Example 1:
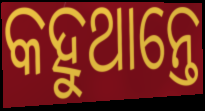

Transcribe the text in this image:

କହୁଥାନ୍ତେ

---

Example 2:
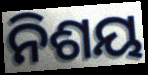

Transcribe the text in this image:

ନିଶୟ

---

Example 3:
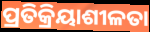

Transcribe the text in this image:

ପ୍ରତିକ୍ରିୟାଶୀଳତା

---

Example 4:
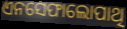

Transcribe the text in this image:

ଏନସେଫାଲୋପାଥି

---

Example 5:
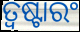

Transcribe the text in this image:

ତ୍ୱଷ୍ଟାରଂ